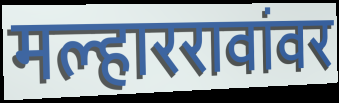
मल्हाररावांवर